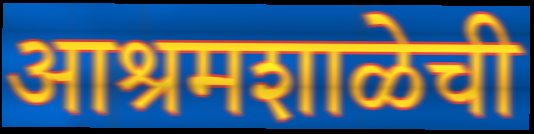
आश्रमशाळेची